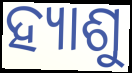
ହ୍ୟାଶୁ